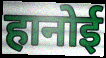
हानोई